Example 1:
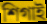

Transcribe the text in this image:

শিগাই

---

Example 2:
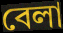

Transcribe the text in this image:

বেলা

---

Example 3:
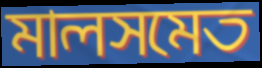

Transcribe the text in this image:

মালসমেত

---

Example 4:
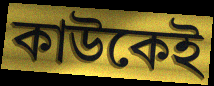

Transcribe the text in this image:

কাউকেই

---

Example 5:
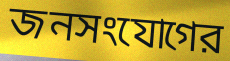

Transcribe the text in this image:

জনসংযোগের